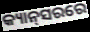
କ୍ୟାନ୍‌ସରରେ